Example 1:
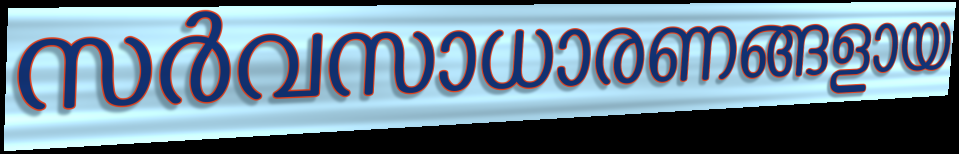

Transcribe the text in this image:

സർവസാധാരണങ്ങളായ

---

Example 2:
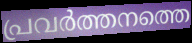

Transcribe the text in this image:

പ്രവർത്തനത്തെ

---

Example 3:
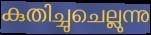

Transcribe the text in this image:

കുതിച്ചുചെല്ലുന്നു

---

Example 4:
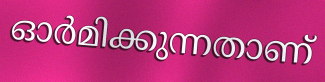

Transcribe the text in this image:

ഓർമിക്കുന്നതാണ്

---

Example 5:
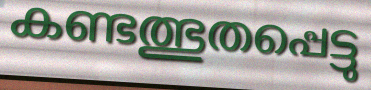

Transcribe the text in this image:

കണ്ടത്ഭുതപ്പെട്ടു